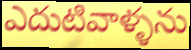
ఎదుటివాళ్ళను